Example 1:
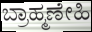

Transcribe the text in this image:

ಬ್ರಾಹ್ಮಣೇಹಿ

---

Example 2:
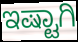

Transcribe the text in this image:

ಇಷ್ಟಾಗಿ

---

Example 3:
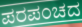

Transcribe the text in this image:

ಪರಪಂಚದ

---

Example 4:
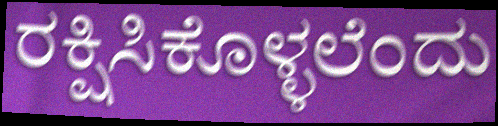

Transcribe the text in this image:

ರಕ್ಷಿಸಿಕೊಳ್ಳಲೆಂದು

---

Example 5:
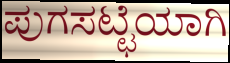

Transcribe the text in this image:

ಪುಗಸಟ್ಟೆಯಾಗಿ